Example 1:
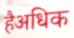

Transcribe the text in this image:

हैअधिक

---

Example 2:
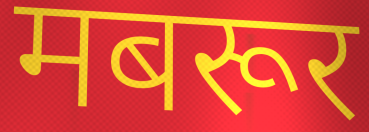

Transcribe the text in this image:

मबरूर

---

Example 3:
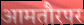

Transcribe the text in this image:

आमतौरपर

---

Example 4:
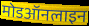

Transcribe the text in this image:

मोडऑनलाइन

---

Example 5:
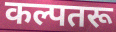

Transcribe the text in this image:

कल्पतरू